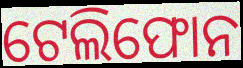
ଟେଲିଫୋନ